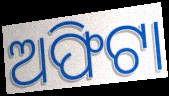
ଅଫିଟା